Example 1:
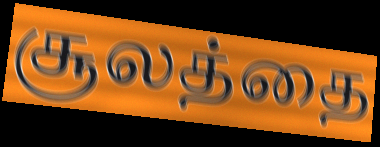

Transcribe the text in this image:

சூலத்தை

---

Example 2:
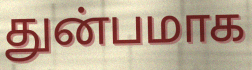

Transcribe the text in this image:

துன்பமாக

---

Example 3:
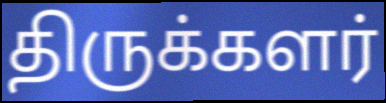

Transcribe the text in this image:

திருக்களர்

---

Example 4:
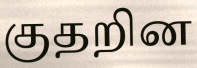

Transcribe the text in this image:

குதறின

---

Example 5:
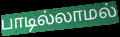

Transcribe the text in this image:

பாடில்லாமல்